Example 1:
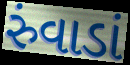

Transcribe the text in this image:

રુંવાડાં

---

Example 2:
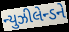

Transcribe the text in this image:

ન્યુઝીલેન્ડને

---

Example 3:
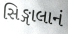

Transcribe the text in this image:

સિઙ્ગાલાનં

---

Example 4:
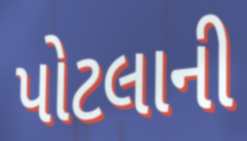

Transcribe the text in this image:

પોટલાની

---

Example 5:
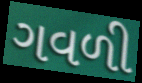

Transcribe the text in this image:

ગવળી